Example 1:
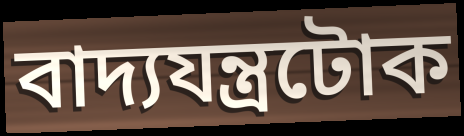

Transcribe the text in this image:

বাদ্যযন্ত্ৰটোক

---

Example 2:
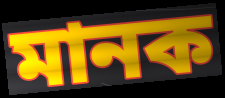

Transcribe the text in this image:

মানক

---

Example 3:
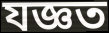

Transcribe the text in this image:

যজ্ঞত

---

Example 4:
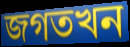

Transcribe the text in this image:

জগতখন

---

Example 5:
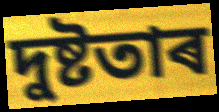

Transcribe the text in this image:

দুষ্টতাৰ